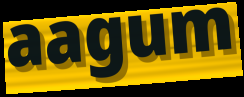
aagum